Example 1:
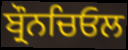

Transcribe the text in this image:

ਬ੍ਰੌਨਚਿਓਲ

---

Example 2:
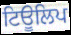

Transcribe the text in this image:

ਟਿਊਲਿਪ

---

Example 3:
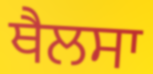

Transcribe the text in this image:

ਥੈਲਸਾ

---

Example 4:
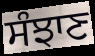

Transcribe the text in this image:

ਸੰਝਾਣ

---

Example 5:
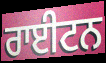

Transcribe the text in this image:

ਰਾਈਟਨ